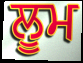
ਲੂਮ